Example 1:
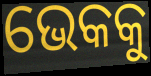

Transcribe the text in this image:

ଭେକକୁ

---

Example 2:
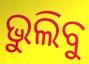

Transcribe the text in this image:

ଭୁଲିବୁ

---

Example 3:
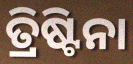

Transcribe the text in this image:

ତ୍ରିଷ୍ଟିନା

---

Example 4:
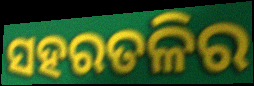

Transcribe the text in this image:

ସହରତଳିର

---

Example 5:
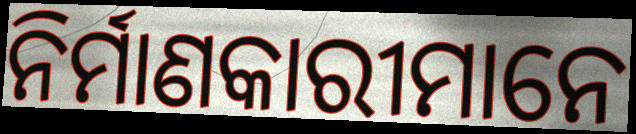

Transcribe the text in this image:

ନିର୍ମାଣକାରୀମାନେ